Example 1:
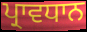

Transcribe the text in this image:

ਪ੍ਰਾਵਧਾਨ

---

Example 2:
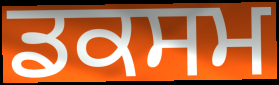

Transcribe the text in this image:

ਡਕਸਮ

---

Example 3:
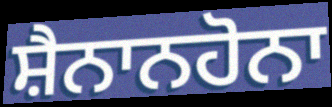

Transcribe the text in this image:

ਸ਼ੈਨਾਨਹੋਨਾ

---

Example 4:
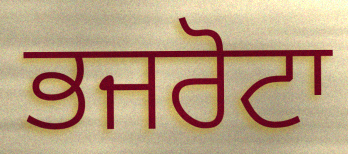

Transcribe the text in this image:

ਭਜਰੋਟਾ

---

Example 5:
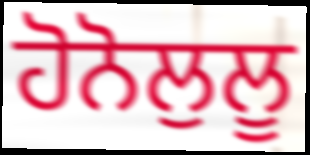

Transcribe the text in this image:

ਹੋਨੋਲੁਲੂ